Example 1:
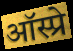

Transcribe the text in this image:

ऑस्प्रे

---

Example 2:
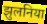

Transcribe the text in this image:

झुलनिया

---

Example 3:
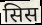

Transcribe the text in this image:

सिस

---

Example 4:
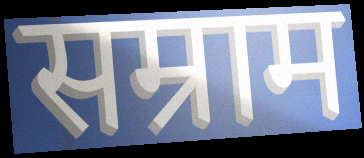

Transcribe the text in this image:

सम्राम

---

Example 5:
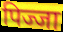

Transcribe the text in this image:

पिज्जा